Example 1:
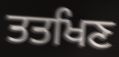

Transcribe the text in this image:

ਤਤਖਿਣ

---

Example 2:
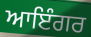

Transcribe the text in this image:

ਆਇੰਗਰ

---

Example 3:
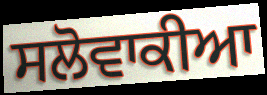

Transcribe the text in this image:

ਸਲੋਵਾਕੀਆ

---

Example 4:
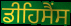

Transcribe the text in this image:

ਡੀਹਿਸੈਂਸ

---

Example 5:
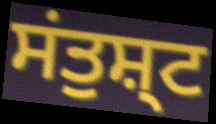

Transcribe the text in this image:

ਸਂਤੁਸ਼੍ਟ